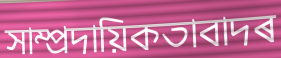
সাম্প্ৰদায়িকতাবাদৰ